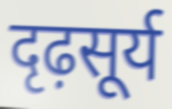
दृढ़सूर्य